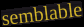
semblable